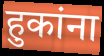
हुकांना